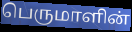
பெருமாளின்